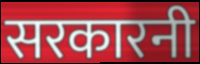
सरकारनी